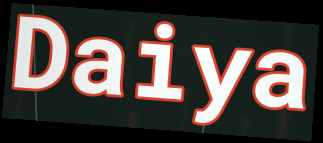
Daiya